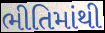
ભીતિમાંથી